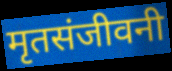
मृतसंजीवनी